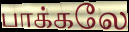
பாக்கலே